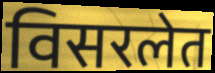
विसरलेत